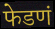
फेडणं